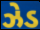
ઝેડ